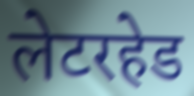
लेटरहेड